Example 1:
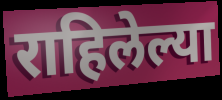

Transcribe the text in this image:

राहिलेल्या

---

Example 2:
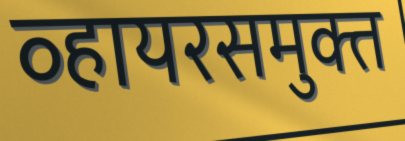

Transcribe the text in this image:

व्हायरसमुक्त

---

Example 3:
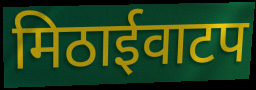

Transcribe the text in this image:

मिठाईवाटप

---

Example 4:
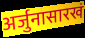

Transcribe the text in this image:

अर्जुनासारखं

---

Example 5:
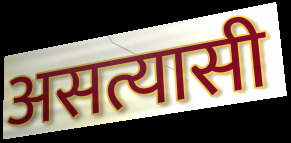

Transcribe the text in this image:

असत्यासी